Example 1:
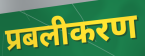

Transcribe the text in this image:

प्रबलीकरण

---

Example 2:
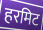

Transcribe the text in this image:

हरमिट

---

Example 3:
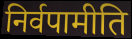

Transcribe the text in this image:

निर्वपामीति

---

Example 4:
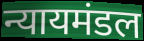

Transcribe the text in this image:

न्यायमंडल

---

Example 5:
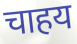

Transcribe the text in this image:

चाहय